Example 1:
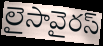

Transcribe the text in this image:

లైసావైరస్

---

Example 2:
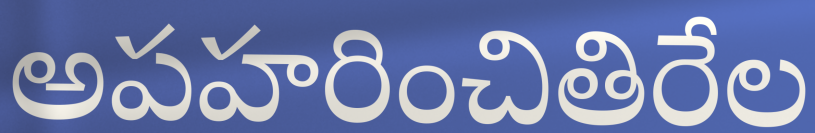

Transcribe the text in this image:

అపహరించితిరేల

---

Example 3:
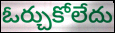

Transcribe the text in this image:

ఓర్చుకోలేదు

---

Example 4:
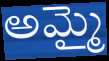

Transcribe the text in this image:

అమ్మై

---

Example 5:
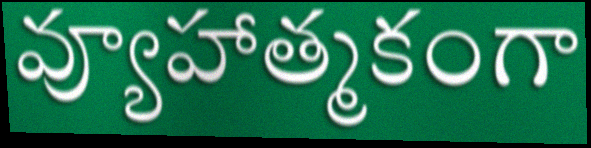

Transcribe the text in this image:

వ్యూహాత్మకంగా